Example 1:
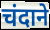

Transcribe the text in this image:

चंदाने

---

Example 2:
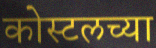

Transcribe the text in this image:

कोस्टलच्या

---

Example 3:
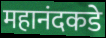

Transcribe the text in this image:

महानंदकडे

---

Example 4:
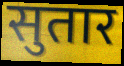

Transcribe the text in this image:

सुतार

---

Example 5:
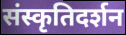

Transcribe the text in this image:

संस्कृतिदर्शन